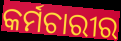
କର୍ମଚାରୀର